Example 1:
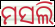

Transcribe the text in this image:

ମସଲି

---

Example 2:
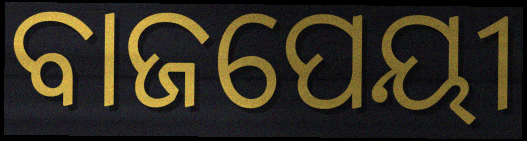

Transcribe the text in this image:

ବାଜପେୟୀ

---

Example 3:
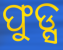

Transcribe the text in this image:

ଫୁଡ୍ସ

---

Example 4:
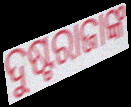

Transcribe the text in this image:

ଦୁଷ୍ଟରାଜାଙ୍କ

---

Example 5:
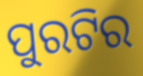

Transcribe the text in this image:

ପୁରଟିର